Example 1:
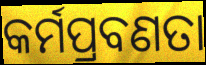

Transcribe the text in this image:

କର୍ମପ୍ରବଣତା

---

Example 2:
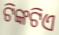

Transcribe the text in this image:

ଟିଙ୍କଟିଏ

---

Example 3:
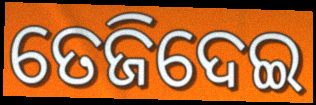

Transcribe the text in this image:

ତେଜିଦେଇ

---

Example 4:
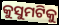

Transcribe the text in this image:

କୁସୁମଟିକୁ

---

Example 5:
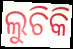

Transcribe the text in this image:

ଲୁଚିକି